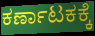
ಕರ್ಣಾಟಕಕ್ಕೆ